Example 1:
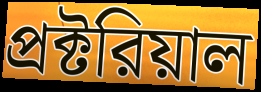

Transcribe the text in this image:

প্রক্টরিয়াল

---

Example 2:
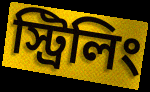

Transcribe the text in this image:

স্ট্রিলিং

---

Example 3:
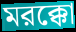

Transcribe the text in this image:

মরক্কো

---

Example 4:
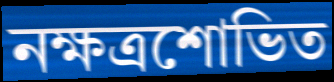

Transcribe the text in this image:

নক্ষত্রশোভিত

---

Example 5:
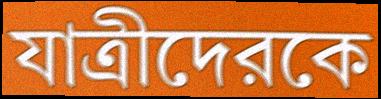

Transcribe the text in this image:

যাত্রীদেরকে